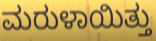
ಮರುಳಾಯಿತ್ತು